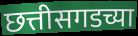
छत्तीसगडच्या